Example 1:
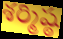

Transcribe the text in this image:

శర్మిష్ఠ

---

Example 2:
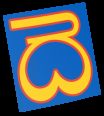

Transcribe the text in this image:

దె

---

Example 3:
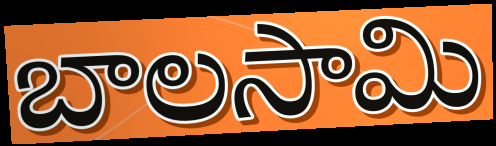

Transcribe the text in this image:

బాలసామి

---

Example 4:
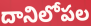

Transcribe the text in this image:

దానిలోపల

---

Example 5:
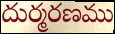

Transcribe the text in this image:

దుర్మరణము